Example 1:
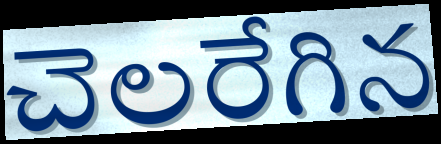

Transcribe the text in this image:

చెలరేగిన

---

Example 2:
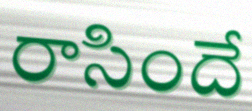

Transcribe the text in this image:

రాసిందే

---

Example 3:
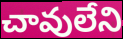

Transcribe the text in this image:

చావులేని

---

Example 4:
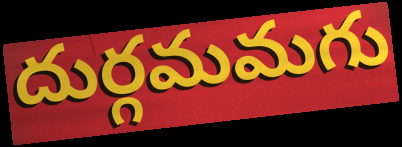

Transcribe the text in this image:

దుర్గమమగు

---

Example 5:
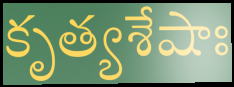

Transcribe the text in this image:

కృత్యశేషాః